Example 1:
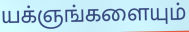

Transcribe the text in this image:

யக்ஞங்களையும்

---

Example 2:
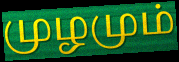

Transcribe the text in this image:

முழமும்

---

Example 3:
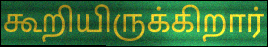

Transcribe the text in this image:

கூறியிருக்கிறார்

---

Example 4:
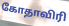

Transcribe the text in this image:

கோதாவிரி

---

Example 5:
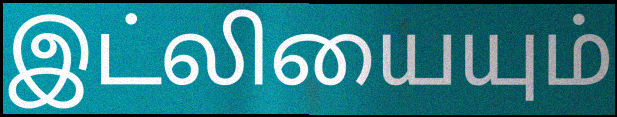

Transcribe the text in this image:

இட்லியையும்